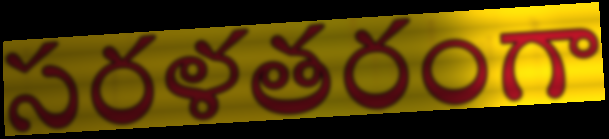
సరళతరంగా